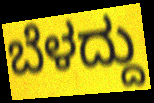
ಬೆಳದ್ದು